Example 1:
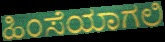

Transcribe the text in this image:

ಹಿಂಸೆಯಾಗಲಿ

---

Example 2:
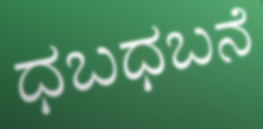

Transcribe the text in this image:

ಧಬಧಬನೆ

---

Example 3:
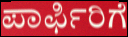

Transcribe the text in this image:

ಪಾರ್ಫಿರಿಗೆ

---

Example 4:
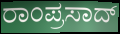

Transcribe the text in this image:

ರಾಂಪ್ರಸಾದ್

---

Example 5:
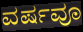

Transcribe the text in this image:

ವರ್ಷವೂ